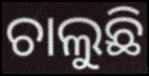
ଚାଲୁଛି